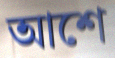
আশে